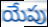
యేపు